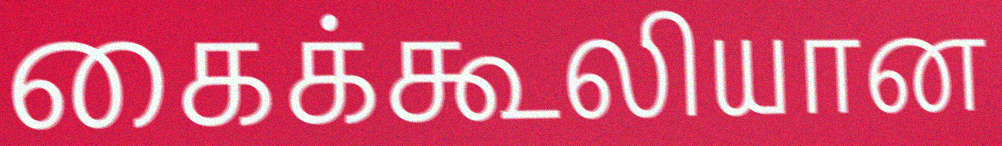
கைக்கூலியான